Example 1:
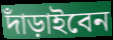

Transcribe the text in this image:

দাঁড়াইবেন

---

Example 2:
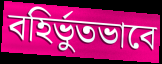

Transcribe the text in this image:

বহির্ভুতভাবে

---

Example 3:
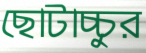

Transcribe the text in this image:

ছোটাচ্চুর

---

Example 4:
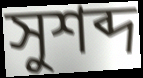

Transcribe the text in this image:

সুশব্দ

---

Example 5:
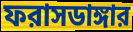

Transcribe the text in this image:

ফরাসডাঙ্গার